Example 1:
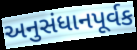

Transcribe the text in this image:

અનુસંધાનપૂર્વક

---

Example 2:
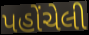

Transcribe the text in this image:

પહોંચેલી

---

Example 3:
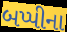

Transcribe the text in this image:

બપ્પીના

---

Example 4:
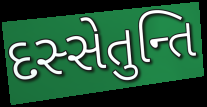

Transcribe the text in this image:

દસ્સેતુન્તિ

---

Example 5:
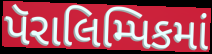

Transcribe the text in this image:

પૅરાલિમ્પિકમાં